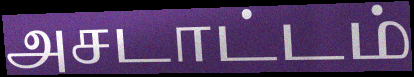
அசடாட்டம்